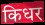
किधर